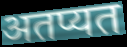
अतप्यत